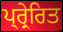
ਪ੍ਰ੍ਰੇਰਿਤ